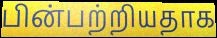
பின்பற்றியதாக